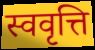
स्ववृत्ति